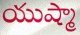
యుష్మా